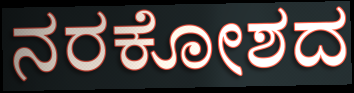
ನರಕೋಶದ